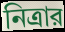
নিত্রার